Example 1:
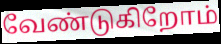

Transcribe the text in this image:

வேண்டுகிறோம்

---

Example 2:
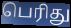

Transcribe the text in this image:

பெரிது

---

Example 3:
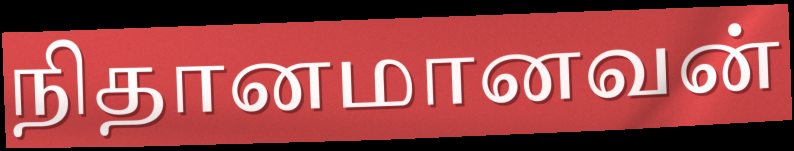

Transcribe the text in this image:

நிதானமானவன்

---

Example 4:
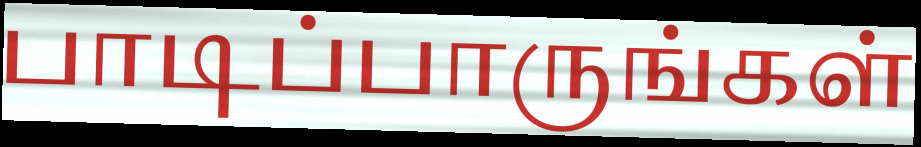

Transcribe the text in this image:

பாடிப்பாருங்கள்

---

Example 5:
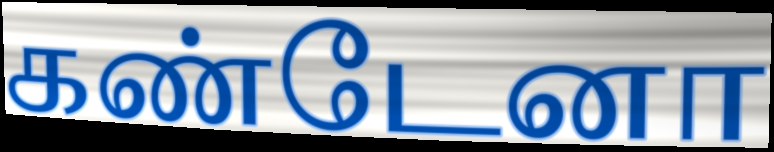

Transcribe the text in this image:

கண்டேனா